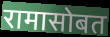
रामासोबत